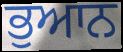
ਭੁਆਨ